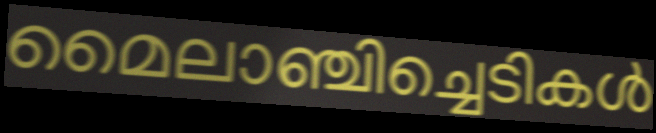
മൈലാഞ്ചിച്ചെടികൾ